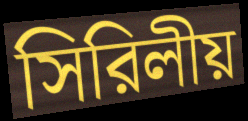
সিরিলীয়